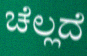
ಚೆಲ್ಲದೆ